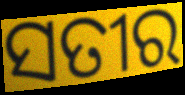
ସତୀର